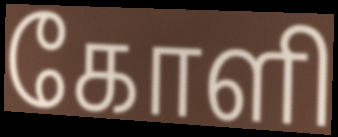
கோளி